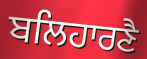
ਬਲਿਹਾਰਣੈ